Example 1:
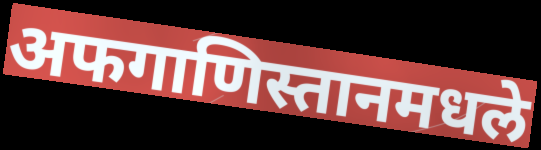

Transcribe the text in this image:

अफगाणिस्तानमधले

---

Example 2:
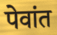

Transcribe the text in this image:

पेवांत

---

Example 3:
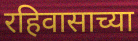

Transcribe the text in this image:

रहिवासाच्या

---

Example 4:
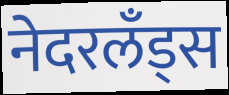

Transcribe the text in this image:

नेदरलँड्स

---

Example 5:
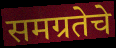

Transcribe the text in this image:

समग्रतेचे